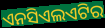
ଏନସିଏଲଏଟିର